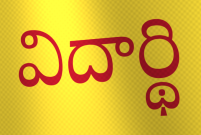
విదార్థి